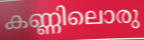
കണ്ണിലൊരു